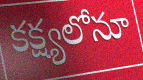
కక్ష్యలోనూ